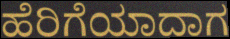
ಹೆರಿಗೆಯಾದಾಗ